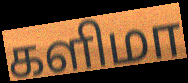
களிமா